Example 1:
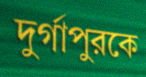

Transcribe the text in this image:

দুর্গাপুরকে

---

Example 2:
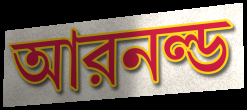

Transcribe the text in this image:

আরনল্ড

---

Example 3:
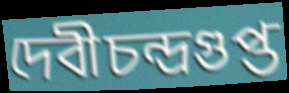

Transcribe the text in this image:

দেবীচন্দ্রগুপ্ত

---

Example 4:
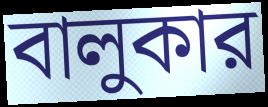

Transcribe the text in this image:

বালুকার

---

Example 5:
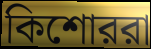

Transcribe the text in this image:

কিশোররা